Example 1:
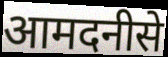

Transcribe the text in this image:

आमदनीसे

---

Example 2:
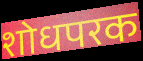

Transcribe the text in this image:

शोधपरक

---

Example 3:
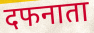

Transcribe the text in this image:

दफनाता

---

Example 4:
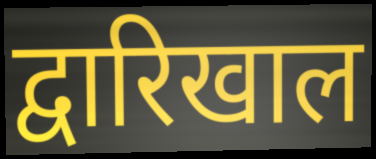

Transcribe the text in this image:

द्वारिखाल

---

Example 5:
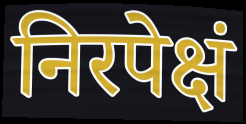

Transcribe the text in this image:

निरपेक्षं